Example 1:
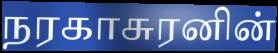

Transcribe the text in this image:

நரகாசுரனின்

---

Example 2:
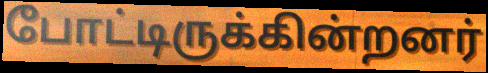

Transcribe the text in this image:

போட்டிருக்கின்றனர்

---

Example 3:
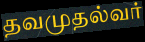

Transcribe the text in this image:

தவமுதல்வர்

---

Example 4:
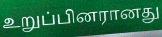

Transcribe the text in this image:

உறுப்பினரானது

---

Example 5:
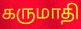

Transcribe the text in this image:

கருமாதி